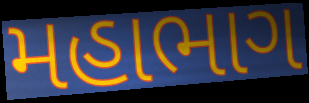
મહાભાગ